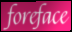
foreface